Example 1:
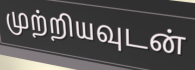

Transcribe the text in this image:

முற்றியவுடன்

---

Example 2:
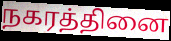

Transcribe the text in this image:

நகரத்தினை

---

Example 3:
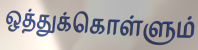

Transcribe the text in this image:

ஒத்துக்கொள்ளும்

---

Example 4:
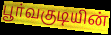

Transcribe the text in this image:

பூர்வகுடியின்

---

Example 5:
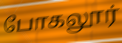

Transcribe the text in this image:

போகலூர்